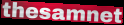
thesamnet